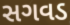
સગવડ